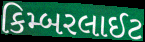
કિમ્બરલાઈટ